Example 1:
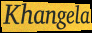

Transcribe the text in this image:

Khangela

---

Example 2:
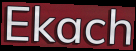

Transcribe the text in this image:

Ekach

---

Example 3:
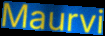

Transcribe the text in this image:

Maurvi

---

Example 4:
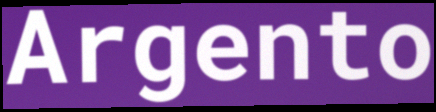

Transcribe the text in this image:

Argento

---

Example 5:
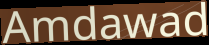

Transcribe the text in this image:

Amdawad